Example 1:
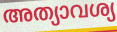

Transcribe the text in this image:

അത്യാവശ്യ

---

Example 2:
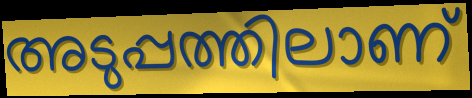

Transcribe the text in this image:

അടുപ്പത്തിലാണ്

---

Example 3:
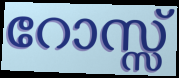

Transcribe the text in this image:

റോസ്സ്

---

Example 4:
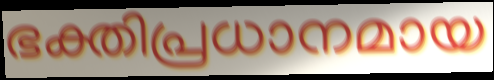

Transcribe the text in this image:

ഭക്തിപ്രധാനമായ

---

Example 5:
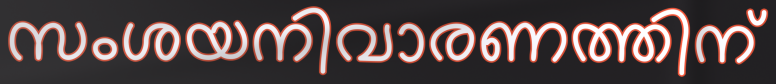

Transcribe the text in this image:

സംശയനിവാരണത്തിന്